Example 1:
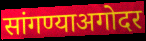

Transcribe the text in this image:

सांगण्याअगोदर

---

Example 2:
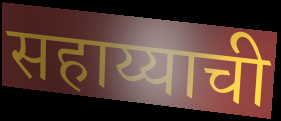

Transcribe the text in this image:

सहाय्याची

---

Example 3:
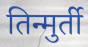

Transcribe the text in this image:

तिन्मुर्ती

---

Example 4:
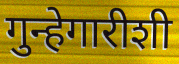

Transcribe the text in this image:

गुन्हेगारीशी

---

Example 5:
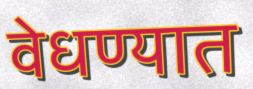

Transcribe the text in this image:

वेधण्यात